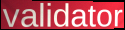
validator